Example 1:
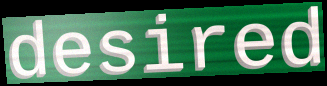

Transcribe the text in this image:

desired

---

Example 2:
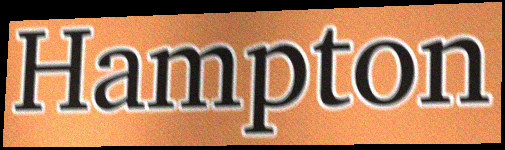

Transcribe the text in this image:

Hampton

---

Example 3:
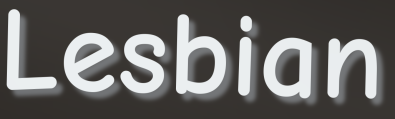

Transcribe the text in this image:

Lesbian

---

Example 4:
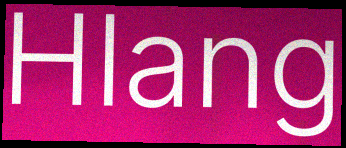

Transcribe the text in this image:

Hlang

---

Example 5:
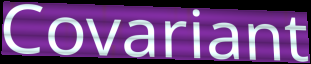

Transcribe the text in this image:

Covariant